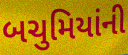
બચુમિયાંની